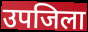
उपजिला